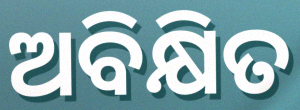
ଅବିକ୍ଷିତ